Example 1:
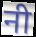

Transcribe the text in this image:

नी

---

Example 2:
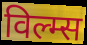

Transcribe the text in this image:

विल्म्स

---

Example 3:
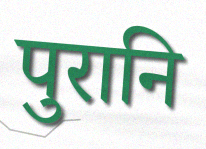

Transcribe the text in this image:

पुरानि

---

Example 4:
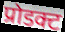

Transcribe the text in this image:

प्रोडक्ट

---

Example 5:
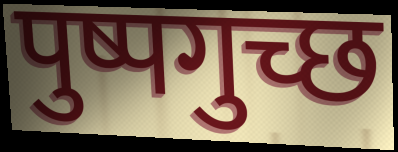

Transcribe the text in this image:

पुष्पगुच्छ